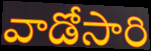
వాడోసారి